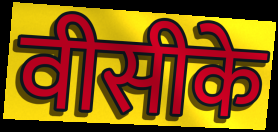
वीसीके